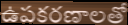
ఉపకరణాలతో